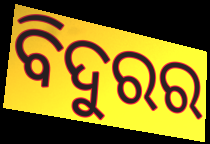
ବିଦୁରର